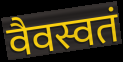
वैवस्वतं